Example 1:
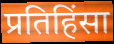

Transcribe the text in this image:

प्रतिहिंसा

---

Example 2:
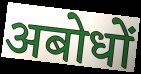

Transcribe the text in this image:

अबोधों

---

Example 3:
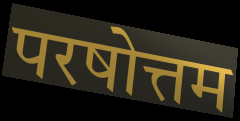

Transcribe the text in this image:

परषोत्तम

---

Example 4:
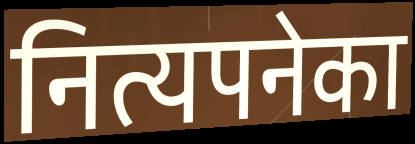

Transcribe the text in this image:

नित्यपनेका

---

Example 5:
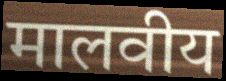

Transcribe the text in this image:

मालवीय